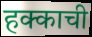
हक्काची